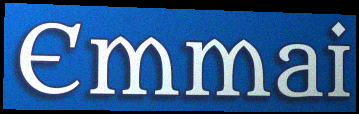
Emmai